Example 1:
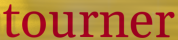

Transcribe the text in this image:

tourner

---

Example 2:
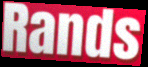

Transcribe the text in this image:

Rands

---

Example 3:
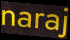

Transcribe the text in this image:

naraj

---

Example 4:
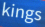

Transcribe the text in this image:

kings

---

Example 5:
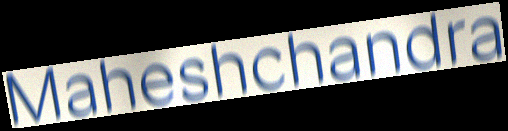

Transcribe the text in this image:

Maheshchandra